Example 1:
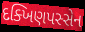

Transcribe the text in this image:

દક્ખિણપસ્સેન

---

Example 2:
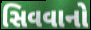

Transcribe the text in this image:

સિવવાનો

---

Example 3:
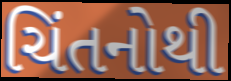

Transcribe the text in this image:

ચિંતનોથી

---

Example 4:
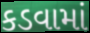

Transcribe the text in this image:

કડવામાં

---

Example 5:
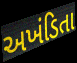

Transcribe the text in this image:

અખંડિતા